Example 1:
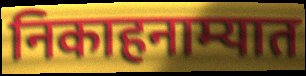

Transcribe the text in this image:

निकाहनाम्यात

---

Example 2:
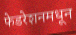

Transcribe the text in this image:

फेडरेशनमधून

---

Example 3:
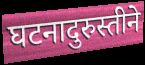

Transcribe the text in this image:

घटनादुरुस्तीने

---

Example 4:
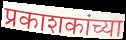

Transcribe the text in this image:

प्रकाशकांच्या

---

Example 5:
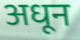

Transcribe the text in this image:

अधून